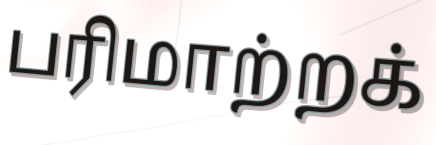
பரிமாற்றக்